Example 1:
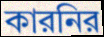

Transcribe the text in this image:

কারনির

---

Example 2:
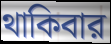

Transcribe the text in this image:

থাকিবার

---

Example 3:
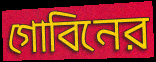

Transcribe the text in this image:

গোবিনের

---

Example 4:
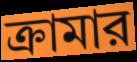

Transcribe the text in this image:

ক্রামার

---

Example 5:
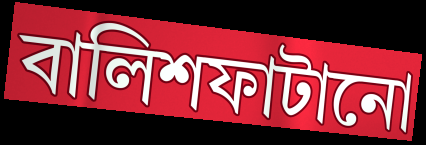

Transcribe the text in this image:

বালিশফাটানো